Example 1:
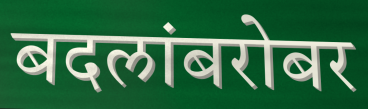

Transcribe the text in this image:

बदलांबरोबर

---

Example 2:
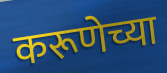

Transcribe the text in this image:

करूणेच्या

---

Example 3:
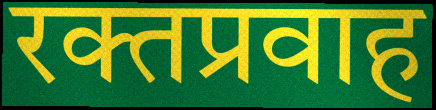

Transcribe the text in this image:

रक्तप्रवाह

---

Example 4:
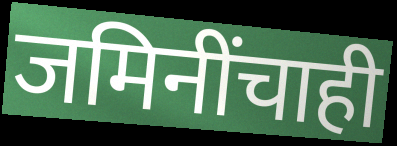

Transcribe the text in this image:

जमिनींचाही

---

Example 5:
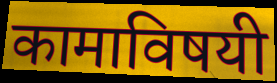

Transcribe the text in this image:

कामाविषयी